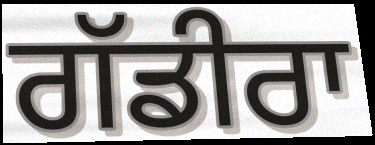
ਗੱਡੀਰਾ